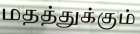
மதத்துக்கும்